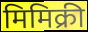
मिमिक्री